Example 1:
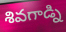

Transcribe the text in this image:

శివగాడ్ని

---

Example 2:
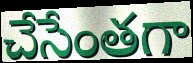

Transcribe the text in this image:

చేసేంతగా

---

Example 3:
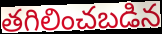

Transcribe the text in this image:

తగిలించబడిన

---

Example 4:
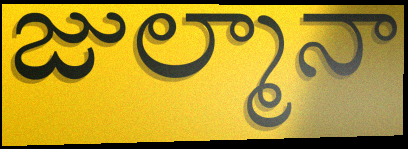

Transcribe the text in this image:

జుల్మానా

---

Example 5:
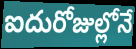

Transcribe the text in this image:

ఐదురోజుల్లోనే